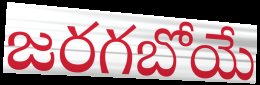
జరగబోయే